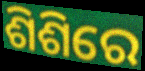
ଶିଶିରେ